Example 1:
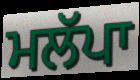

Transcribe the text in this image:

ਮਲੱਪਾ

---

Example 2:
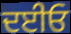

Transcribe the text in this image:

ਦਈਓ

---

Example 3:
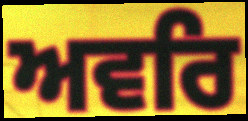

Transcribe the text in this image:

ਅਵਰਿ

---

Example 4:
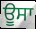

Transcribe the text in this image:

ਊਸਾ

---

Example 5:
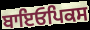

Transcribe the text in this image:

ਬਾਇਓਪਿਕਸ